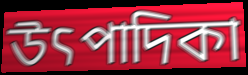
উৎপাদিকা